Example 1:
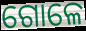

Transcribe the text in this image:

ଗୋଳେ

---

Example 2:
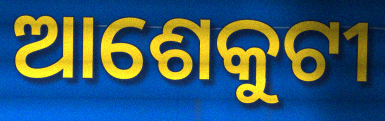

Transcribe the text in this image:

ଆଶେକୁଟୀ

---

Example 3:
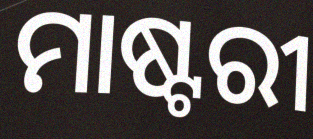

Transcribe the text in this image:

ମାଷ୍ଟରୀ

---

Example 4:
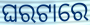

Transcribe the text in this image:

ଘରଟାରେ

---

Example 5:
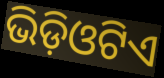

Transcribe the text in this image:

ଭିଡ଼ିଓଟିଏ